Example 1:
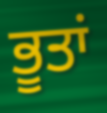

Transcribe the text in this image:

ਭੂਤਾਂ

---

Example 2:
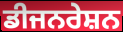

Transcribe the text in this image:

ਡੀਜਨਰੇਸ਼ਨ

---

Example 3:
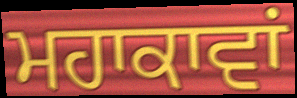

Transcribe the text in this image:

ਮਹਾਕਾਵਾਂ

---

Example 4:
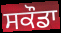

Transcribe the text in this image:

ਸਕੌਡਾ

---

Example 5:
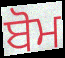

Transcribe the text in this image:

ਬੋਮ